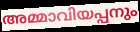
അമ്മാവിയപ്പനും